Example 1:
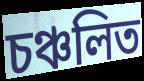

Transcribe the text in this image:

চঞ্চলিত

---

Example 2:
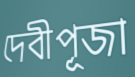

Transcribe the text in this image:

দেবীপূজা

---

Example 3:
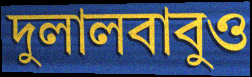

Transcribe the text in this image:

দুলালবাবুও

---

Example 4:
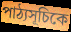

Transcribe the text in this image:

পাঠ্যসূচিকে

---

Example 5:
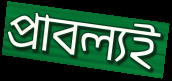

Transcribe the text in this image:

প্রাবল্যই